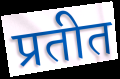
प्रतीत